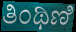
ತಿಂಥಿಣಿ